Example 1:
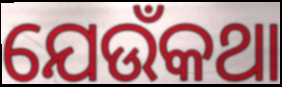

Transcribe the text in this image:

ଯେଉଁକଥା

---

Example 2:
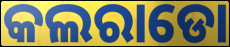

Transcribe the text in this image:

କଲରାଡୋ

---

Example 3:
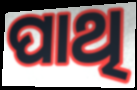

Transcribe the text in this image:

ପାଥି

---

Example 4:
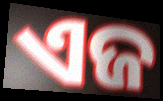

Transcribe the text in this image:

ଏଜ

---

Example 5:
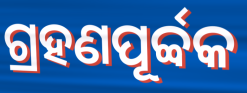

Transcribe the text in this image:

ଗ୍ରହଣପୂର୍ବ୍ବକ